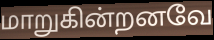
மாறுகின்றனவே